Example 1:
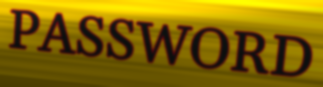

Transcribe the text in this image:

PASSWORD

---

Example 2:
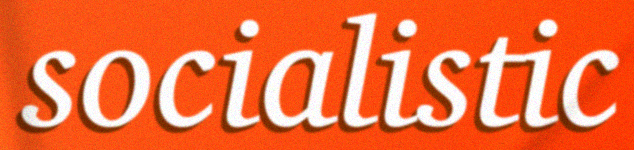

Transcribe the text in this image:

socialistic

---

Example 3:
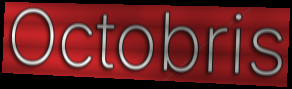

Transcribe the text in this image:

Octobris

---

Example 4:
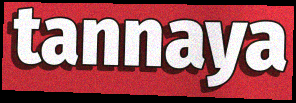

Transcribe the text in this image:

tannaya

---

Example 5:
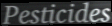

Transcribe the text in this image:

Pesticides